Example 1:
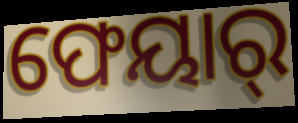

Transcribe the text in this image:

ଫେୟାର୍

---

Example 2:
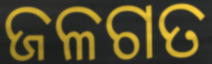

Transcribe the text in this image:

ଜଳଗତ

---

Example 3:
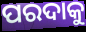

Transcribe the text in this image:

ପରଦାକୁ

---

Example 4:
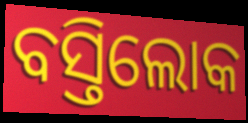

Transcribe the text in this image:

ବସ୍ତିଲୋକ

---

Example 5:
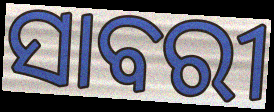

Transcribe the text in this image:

ସାବରୀ